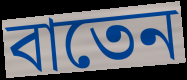
বাতেন